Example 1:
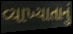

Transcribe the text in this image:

વ્યાખ્યાતાનું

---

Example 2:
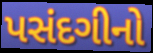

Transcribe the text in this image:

પસંદગીનો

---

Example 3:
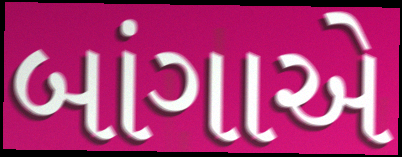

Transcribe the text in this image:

બાંગાએ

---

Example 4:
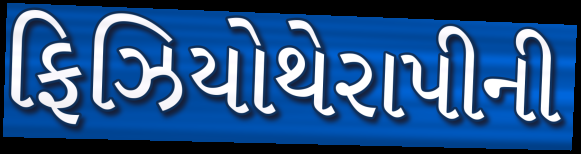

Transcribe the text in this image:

ફિઝિયોથેરાપીની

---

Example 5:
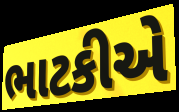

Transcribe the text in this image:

ભાટકીએ